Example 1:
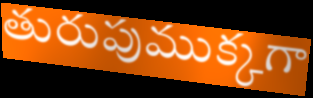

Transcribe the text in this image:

తురుపుముక్కగా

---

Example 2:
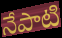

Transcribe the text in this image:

నేపాటి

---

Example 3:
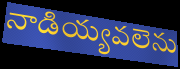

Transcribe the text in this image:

నాడియ్యవలెను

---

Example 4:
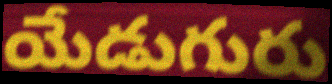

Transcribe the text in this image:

యేడుగురు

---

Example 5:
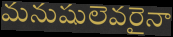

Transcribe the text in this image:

మనుషులెవరైనా